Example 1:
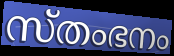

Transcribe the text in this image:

സ്തംഭനം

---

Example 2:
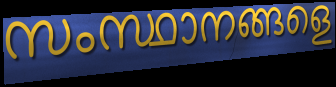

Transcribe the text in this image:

സംസ്ഥാനങ്ങളെ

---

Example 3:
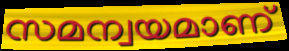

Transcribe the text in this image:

സമന്വയമാണ്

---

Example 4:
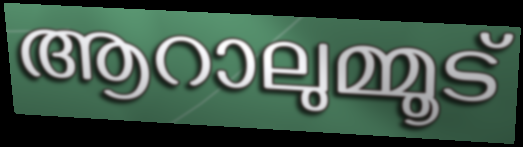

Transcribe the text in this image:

ആറാലുമ്മൂട്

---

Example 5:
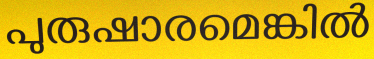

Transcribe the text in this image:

പുരുഷാരമെങ്കിൽ